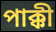
পাক্কী